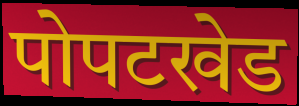
पोपटखेड